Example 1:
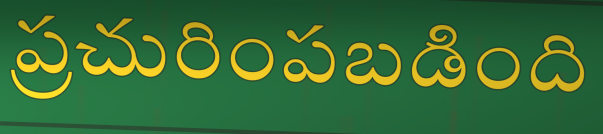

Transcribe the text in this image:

ప్రచురింపబడింది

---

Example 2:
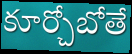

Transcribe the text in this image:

కూర్చోబోతే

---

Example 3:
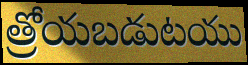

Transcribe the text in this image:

త్రోయబడుటయు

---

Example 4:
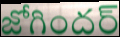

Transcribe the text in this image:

జోగిందర్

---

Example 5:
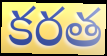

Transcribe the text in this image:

కరత